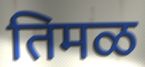
तिमळ